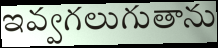
ఇవ్వగలుగుతాను